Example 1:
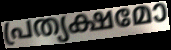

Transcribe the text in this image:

പ്രത്യക്ഷമോ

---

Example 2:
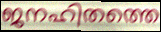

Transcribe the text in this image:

ജനഹിതത്തെ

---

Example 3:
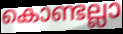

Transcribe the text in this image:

കൊണ്ടല്ലാ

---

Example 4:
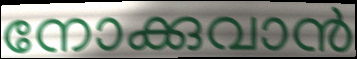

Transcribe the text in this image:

നോക്കുവാൻ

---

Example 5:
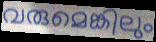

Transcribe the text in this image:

വരുമെങ്കിലും